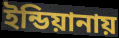
ইন্ডিয়ানায়